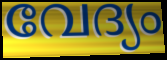
വേദ്യം